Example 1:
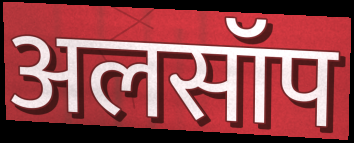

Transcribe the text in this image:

अलसॉप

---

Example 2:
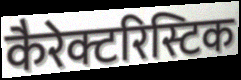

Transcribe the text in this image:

कैरेक्टरिस्टिक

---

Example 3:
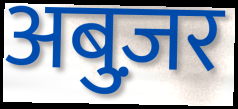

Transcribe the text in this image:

अबुज़र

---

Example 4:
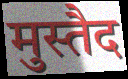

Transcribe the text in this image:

मुस्‍तैद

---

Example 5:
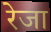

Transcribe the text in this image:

रेजा